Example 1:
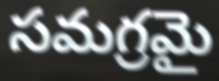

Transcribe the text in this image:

సమగ్రమై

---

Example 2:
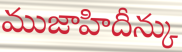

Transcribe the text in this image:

ముజాహిదీన్కు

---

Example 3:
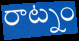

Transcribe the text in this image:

రాట్నం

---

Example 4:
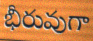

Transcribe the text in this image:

భీరువుగా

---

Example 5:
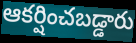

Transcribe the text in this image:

ఆకర్షించబడ్డారు